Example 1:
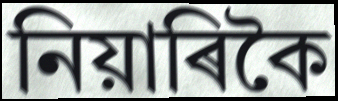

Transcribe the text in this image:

নিয়াৰিকৈ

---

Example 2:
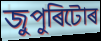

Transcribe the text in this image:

জুপুৰিটোৰ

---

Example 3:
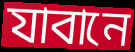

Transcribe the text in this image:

যাবানে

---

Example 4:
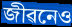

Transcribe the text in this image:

জীৱনেও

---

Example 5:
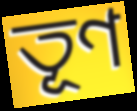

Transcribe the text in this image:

তূণ